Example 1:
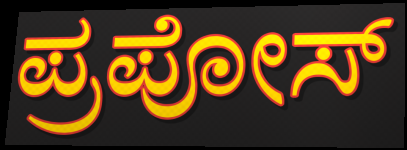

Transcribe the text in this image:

ಪ್ರಪೋಸ್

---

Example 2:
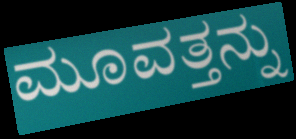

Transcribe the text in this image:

ಮೂವತ್ತನ್ನು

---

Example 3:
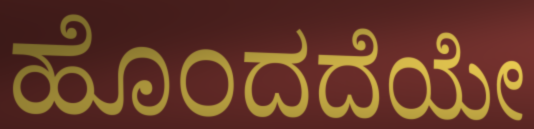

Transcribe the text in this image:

ಹೊಂದದೆಯೇ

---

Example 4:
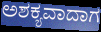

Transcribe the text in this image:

ಅಶಕ್ಯವಾದಾಗ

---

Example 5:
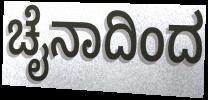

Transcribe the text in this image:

ಚೈನಾದಿಂದ